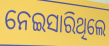
ନେଇସାରିଥିଲେ